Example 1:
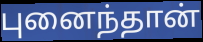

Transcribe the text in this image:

புனைந்தான்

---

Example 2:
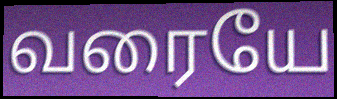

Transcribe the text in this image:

வரையே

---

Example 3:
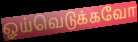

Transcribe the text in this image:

ஓய்வெடுக்கவோ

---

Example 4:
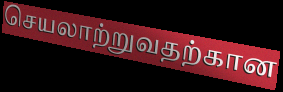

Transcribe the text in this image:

செயலாற்றுவதற்கான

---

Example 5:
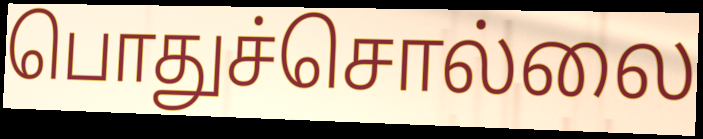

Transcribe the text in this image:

பொதுச்சொல்லை